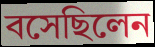
বসেছিলেন